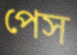
পেস